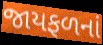
જાયફળનાં